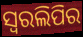
ସ୍ୱରଲିପିର